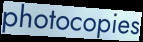
photocopies